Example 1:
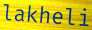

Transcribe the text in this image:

lakheli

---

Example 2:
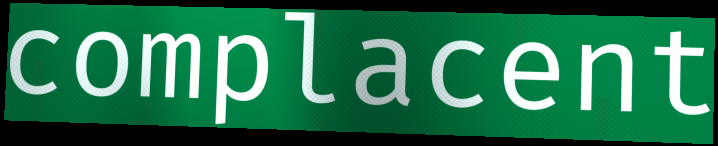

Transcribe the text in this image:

complacent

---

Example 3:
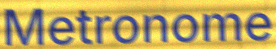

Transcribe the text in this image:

Metronome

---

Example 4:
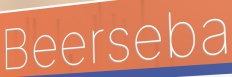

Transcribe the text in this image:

Beerseba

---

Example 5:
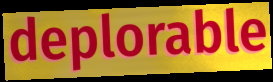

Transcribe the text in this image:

deplorable